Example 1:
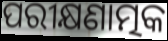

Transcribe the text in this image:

ପରୀକ୍ଷଣାତ୍ମକ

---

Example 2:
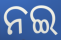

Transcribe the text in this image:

ନଇ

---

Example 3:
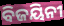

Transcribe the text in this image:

ବିଜୟିନୀ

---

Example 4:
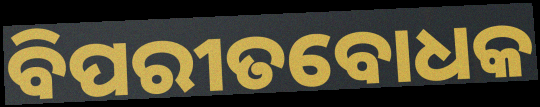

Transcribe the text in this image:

ବିପରୀତବୋଧକ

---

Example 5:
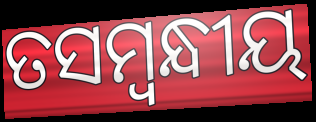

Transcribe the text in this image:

ତସମ୍ବନ୍ଧୀୟ